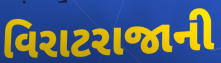
વિરાટરાજાની